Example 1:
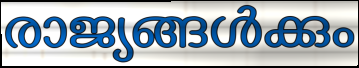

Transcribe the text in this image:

രാജ്യങ്ങൾക്കും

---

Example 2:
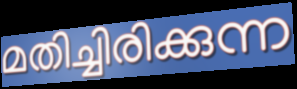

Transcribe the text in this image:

മതിച്ചിരിക്കുന്ന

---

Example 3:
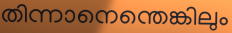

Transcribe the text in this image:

തിന്നാനെന്തെങ്കിലും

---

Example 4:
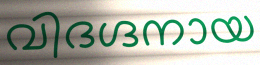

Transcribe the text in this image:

വിദഗ്ദനായ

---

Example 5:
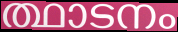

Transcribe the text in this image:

ത്ഥാടനം